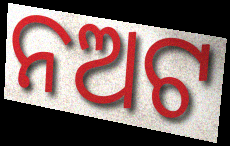
ନଅଟ